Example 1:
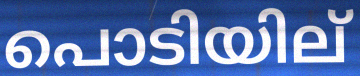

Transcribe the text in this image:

പൊടിയില്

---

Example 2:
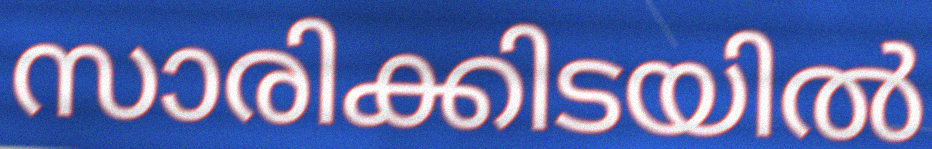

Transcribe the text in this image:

സാരിക്കിടയിൽ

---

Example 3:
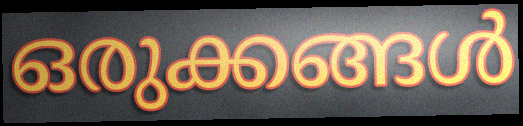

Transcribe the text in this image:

ഒരുക്കങ്ങൾ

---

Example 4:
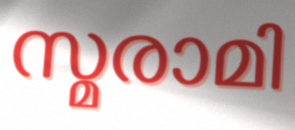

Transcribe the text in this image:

സ്മരാമി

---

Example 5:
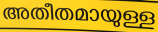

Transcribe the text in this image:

അതീതമായുള്ള